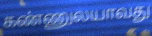
கண்ணுலயாவது